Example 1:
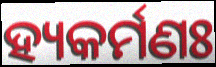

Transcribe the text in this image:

ହ୍ୟକର୍ମଣଃ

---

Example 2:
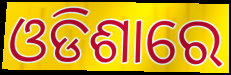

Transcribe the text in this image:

ଓଡିଶାରେ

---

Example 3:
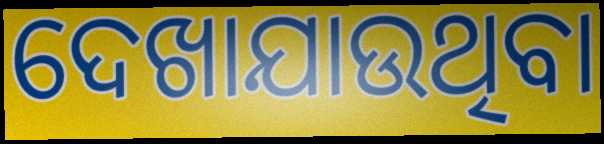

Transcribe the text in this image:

ଦେଖାଯାଉଥିବା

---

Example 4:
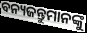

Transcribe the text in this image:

ବନ୍ୟଜନ୍ତୁମାନଙ୍କୁ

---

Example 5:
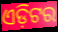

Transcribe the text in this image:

ଏଡ଼ିଟର